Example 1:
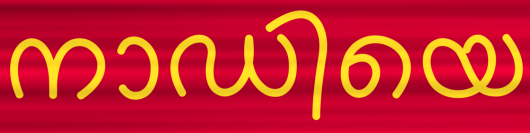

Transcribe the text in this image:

നാഡിയെ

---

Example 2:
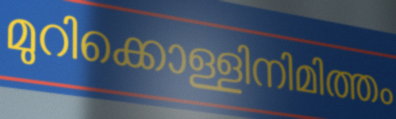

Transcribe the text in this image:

മുറിക്കൊള്ളിനിമിത്തം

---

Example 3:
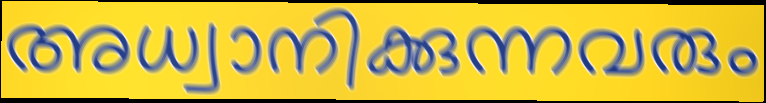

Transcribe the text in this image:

അധ്വാനിക്കുന്നവരും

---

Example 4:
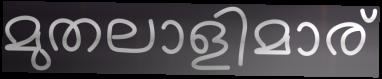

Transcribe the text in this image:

മുതലാളിമാര്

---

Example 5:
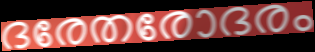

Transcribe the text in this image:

ദരേതരോദരം